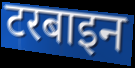
टरबाइन